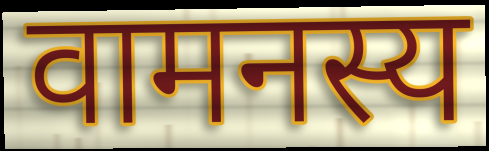
वामनस्य